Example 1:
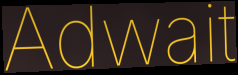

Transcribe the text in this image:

Adwait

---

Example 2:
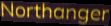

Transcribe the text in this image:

Northanger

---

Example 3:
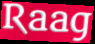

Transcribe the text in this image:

Raag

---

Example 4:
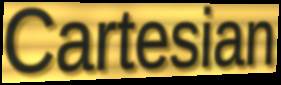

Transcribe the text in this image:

Cartesian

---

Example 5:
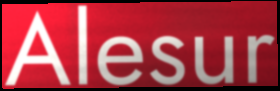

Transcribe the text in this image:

Alesur